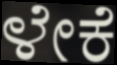
ಳೇಕೆ